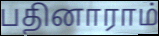
பதினாராம்